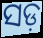
ସଡ଼